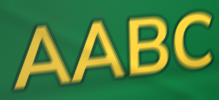
AABC